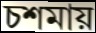
চশমায়